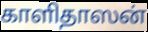
காளிதாஸன்